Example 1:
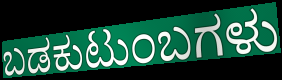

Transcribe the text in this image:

ಬಡಕುಟುಂಬಗಳು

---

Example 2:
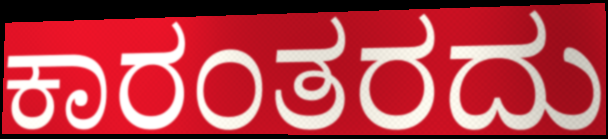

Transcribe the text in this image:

ಕಾರಂತರದು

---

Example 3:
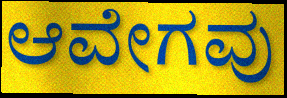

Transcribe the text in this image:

ಆವೇಗವು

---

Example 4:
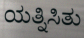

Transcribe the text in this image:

ಯತ್ನಿಸಿತು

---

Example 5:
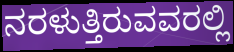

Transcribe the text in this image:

ನರಳುತ್ತಿರುವವರಲ್ಲಿ